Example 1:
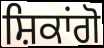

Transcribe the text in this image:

ਸ਼ਿਕਾਂਗੋ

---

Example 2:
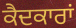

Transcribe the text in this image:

ਕੈਦਕਾਰਾਂ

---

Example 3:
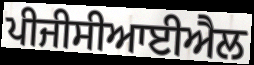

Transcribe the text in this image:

ਪੀਜੀਸੀਆਈਐਲ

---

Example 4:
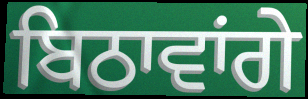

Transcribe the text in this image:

ਬਿਠਾਵਾਂਗੇ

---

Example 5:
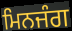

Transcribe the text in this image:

ਮਿਨਜੰਗ